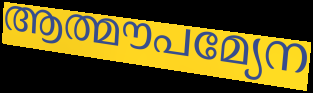
ആത്മൗപമ്യേന